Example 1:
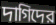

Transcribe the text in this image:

দাগিদের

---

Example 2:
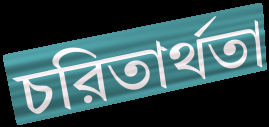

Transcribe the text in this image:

চরিতার্থতা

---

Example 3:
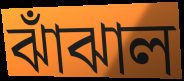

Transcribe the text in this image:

ঝাঁঝাল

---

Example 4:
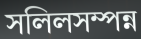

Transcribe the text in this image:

সলিলসম্পন্ন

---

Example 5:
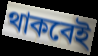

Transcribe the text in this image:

থাকবেই